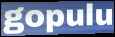
gopulu